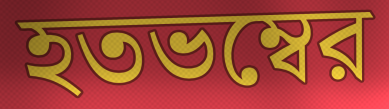
হতভম্বের